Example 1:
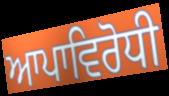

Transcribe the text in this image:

ਆਪਾਵਿਰੋਧੀ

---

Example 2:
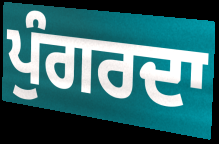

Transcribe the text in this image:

ਪੁੰਗਰਦਾ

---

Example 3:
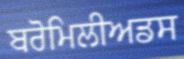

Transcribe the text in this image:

ਬਰੋਮਿਲੀਅਡਸ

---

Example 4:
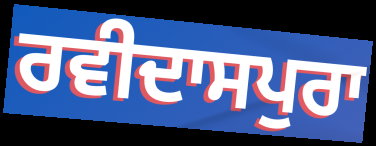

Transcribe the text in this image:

ਰਵੀਦਾਸਪੁਰਾ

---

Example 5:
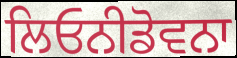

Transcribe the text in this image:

ਲਿਓਨੀਡੋਵਨਾ